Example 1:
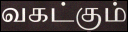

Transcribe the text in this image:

வகட்கும்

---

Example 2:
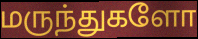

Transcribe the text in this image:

மருந்துகளோ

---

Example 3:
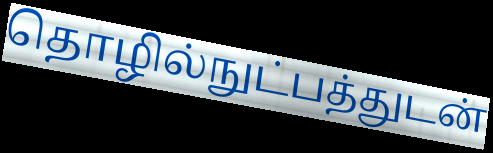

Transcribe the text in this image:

தொழில்நுட்பத்துடன்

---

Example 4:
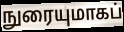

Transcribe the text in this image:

நுரையுமாகப்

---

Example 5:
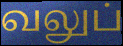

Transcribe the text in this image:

வலுப்